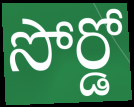
సోర్డో